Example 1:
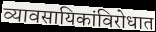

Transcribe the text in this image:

व्यावसायिकांविरोधात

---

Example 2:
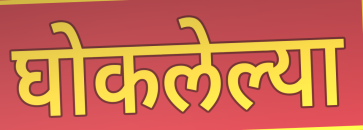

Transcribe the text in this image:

घोकलेल्या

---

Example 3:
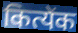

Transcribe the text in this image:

कित्येंक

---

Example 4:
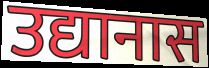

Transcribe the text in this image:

उद्यानास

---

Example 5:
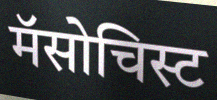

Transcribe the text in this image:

मॅसोचिस्ट